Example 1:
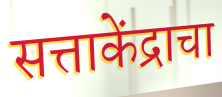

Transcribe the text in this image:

सत्ताकेंद्राचा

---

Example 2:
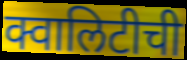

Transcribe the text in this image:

क्वालिटीची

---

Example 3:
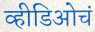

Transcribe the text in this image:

व्हीडिओचं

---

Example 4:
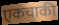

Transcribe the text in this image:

एकचाकी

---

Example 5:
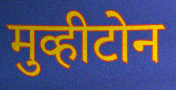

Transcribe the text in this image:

मुव्हीटोन